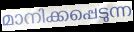
മാനിക്കപ്പെടുന്ന